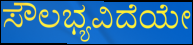
ಸೌಲಭ್ಯವಿದೆಯೇ